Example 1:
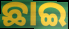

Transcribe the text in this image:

ଛାଇ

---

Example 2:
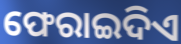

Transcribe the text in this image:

ଫେରାଇଦିଏ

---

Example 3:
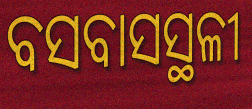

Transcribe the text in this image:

ବସବାସସ୍ଥଳୀ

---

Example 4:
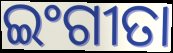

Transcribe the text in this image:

ଇଂଗୀତା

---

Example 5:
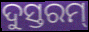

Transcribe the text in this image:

ଦୁସ୍ତରମ୍